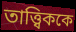
তাত্ত্বিককে